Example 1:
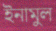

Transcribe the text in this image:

ইনামুল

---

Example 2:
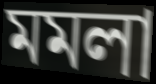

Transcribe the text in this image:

মমলা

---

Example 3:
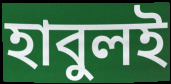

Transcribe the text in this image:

হাবুলই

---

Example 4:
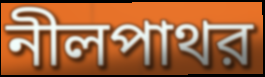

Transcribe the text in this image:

নীলপাথর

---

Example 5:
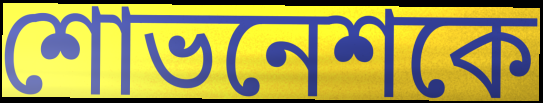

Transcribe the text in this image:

শোভনেশকে